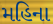
મહિના